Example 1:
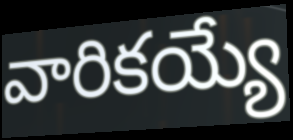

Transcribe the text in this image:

వారికయ్యే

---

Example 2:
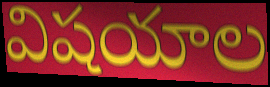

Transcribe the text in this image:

విషయాల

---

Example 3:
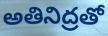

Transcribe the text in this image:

అతినిద్రతో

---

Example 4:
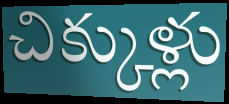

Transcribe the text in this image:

చిక్కుళ్లు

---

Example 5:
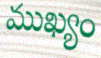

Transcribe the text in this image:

ముఖ్యం